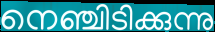
നെഞ്ചിടിക്കുന്നു